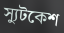
স্যুটকেশ